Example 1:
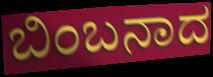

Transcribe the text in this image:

ಬಿಂಬನಾದ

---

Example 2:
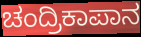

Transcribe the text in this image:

ಚಂದ್ರಿಕಾಪಾನ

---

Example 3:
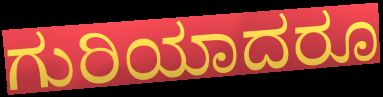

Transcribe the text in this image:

ಗುರಿಯಾದರೂ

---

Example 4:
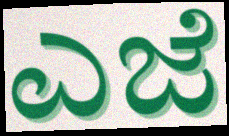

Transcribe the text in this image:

ಎಜೆ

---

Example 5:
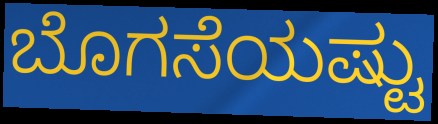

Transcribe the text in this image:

ಬೊಗಸೆಯಷ್ಟು